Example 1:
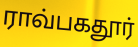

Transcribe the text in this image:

ராவ்பகதூர்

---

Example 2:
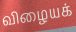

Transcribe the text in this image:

விழையக்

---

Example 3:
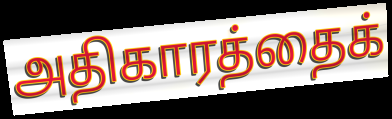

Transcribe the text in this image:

அதிகாரத்தைக்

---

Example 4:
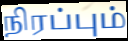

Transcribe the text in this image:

நிரப்பும்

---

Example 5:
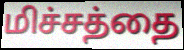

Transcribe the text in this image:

மிச்சத்தை